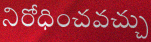
నిరోధించవచ్చు